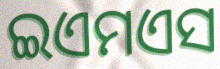
ଇଏମଏସ